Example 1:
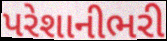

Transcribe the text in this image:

પરેશાનીભરી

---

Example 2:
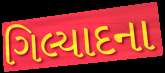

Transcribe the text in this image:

ગિલ્યાદના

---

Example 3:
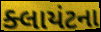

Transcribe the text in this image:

ક્લાયંટના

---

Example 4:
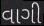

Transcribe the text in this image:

વાગી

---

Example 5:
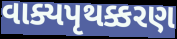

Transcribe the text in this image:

વાક્યપૃથક્કરણ